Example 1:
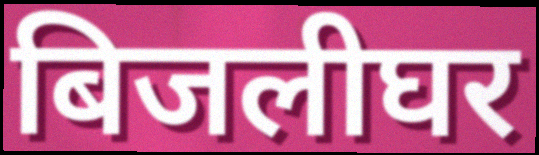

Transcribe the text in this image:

बिजलीघर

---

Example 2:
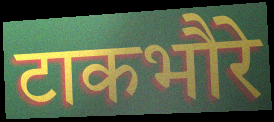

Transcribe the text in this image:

टाकभौरे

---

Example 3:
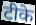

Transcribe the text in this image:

टीके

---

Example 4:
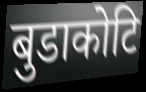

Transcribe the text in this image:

बुडाकोटि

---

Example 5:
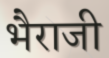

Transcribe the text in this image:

भैराजी